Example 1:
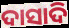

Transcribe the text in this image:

ଦାସାଦି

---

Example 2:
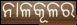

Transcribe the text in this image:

ନାଳକୂଳର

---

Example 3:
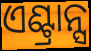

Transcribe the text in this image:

ଏଣ୍ଟ୍ରାନ୍ସ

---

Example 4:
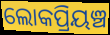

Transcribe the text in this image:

ଲୋକପ୍ରିୟଞ୍ଚ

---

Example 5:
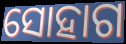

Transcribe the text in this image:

ସୋହାଗ